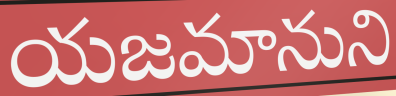
యజమానుని